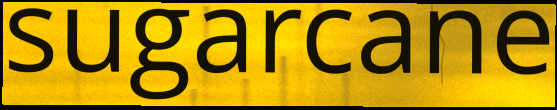
sugarcane